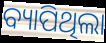
ବ୍ୟାପିଥିଲା